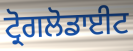
ਟ੍ਰੋਗਲੋਡਾਈਟ